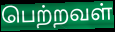
பெற்றவள்